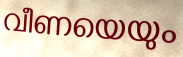
വീണയെയും